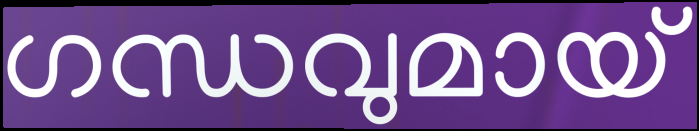
ഗന്ധവുമായ്